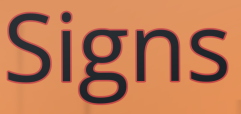
Signs